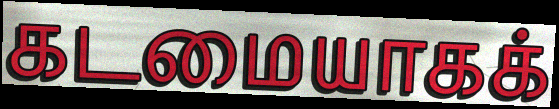
கடமையாகக்